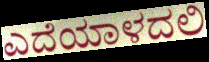
ಎದೆಯಾಳದಲಿ